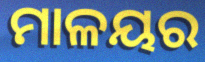
ମାଳୟର